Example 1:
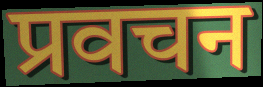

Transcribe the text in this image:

प्रवचन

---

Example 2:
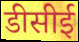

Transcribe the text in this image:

डीसीई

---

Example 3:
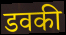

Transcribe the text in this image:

डवकी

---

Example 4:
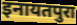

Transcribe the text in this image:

इनायतपुरा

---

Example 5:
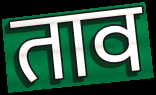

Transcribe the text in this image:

ताव